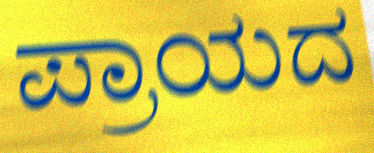
ಪ್ರಾಯದ